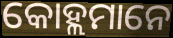
କୋହ୍ଲମାନେ